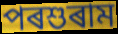
পৰশুৰাম